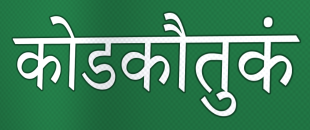
कोडकौतुकं